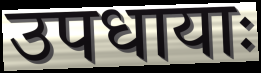
उपधायाः